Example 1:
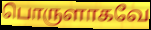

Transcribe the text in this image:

பொருளாகவே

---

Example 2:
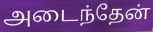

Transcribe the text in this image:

அடைந்தேன்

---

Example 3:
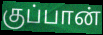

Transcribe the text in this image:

குப்பான்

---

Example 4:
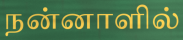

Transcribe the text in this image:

நன்னாளில்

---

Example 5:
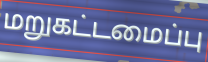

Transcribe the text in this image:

மறுகட்டமைப்பு